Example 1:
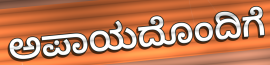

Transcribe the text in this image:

ಅಪಾಯದೊಂದಿಗೆ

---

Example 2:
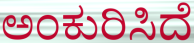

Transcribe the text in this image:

ಅಂಕುರಿಸಿದೆ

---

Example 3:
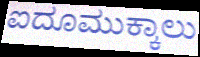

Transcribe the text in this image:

ಐದೂಮುಕ್ಕಾಲು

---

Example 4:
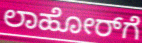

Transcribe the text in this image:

ಲಾಹೋರ್‌ಗೆ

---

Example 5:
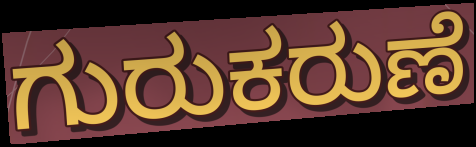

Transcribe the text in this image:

ಗುರುಕರುಣೆ